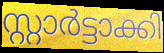
സ്റ്റാർട്ടാക്കി